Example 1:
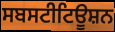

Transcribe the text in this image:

ਸਬਸਟੀਟਿਊਸ਼ਨ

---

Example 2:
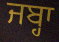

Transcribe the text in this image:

ਜਬ੍ਹਾ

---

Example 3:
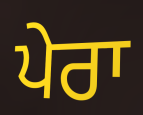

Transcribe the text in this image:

ਪੇਰਾ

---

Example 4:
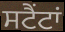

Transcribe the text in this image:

ਸਟੈਂਟਾਂ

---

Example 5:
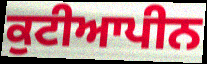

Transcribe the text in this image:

ਕੁਟੀਆਪੀਨ